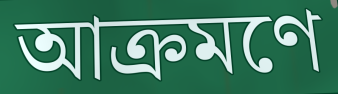
আক্রমণে